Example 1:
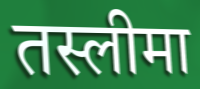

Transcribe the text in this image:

तस्लीमा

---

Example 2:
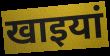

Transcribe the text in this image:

खाइयां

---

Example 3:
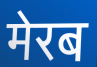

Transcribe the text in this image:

मेरब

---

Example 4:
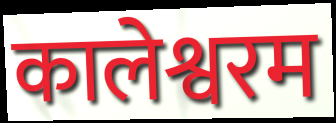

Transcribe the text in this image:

कालेश्वरम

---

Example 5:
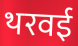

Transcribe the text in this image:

थरवई